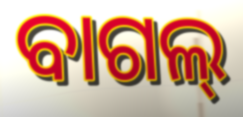
ବାଗଲ୍